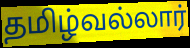
தமிழ்வல்லார்